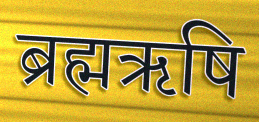
ब्रह्मऋषि